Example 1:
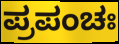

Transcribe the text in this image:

ಪ್ರಪಂಚಃ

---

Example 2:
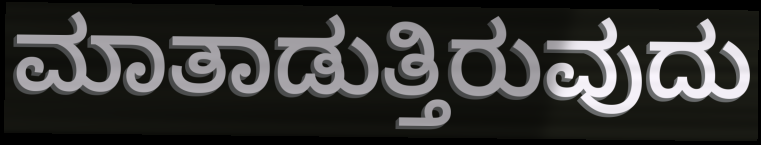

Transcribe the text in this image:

ಮಾತಾಡುತ್ತಿರುವುದು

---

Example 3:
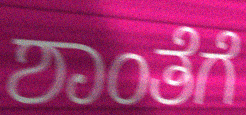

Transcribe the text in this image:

ಶಾಂತೆಗೆ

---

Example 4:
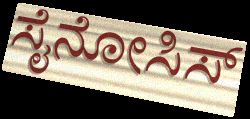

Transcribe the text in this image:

ಸೈನೋಸಿಸ್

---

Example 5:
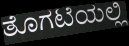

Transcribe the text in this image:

ತೊಗಟೆಯಲ್ಲಿ